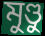
মুণ্ডু